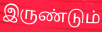
இருண்டும்